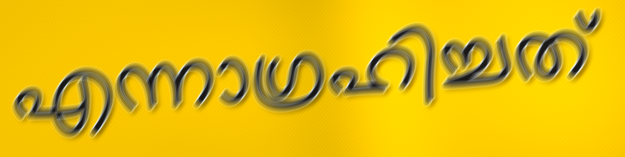
എന്നാഗ്രഹിച്ചത്